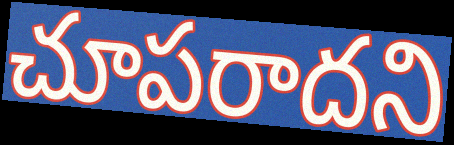
చూపరాదని